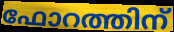
ഫോറത്തിന്